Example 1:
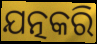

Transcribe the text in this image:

ଯତ୍ନକରି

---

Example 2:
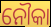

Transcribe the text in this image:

ନୌକା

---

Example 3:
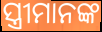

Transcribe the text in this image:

ସ୍ତ୍ରୀମାନଙ୍କ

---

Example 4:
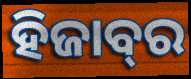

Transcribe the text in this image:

ହିଜାବ୍‌ର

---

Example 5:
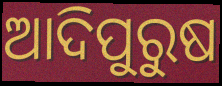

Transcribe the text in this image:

ଆଦିପୁରୁଷ